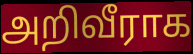
அறிவீராக